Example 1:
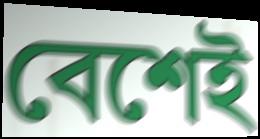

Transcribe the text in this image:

বেশেই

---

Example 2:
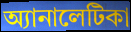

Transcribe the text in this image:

অ্যানালেটিকা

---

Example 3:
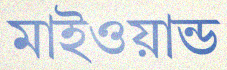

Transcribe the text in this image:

মাইওয়ান্ড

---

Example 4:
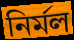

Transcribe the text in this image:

নির্মল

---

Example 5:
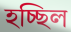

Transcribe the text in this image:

হচ্ছিল